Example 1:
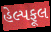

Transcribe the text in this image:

હેલ્પફૂલ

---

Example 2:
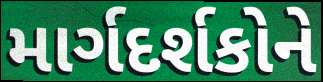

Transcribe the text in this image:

માર્ગદર્શકોને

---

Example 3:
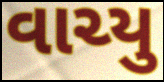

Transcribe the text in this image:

વાચ્યુ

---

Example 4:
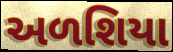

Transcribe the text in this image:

અળશિયા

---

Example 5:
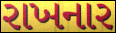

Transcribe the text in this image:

રાખનાર